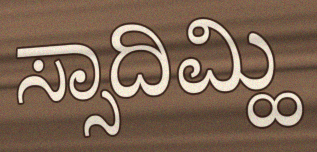
ಸ್ಸಾದಿಮ್ಹಿ